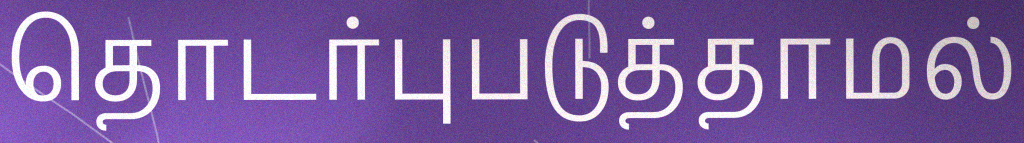
தொடர்புபடுத்தாமல்